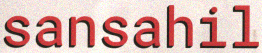
sansahil